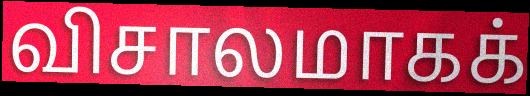
விசாலமாகக்